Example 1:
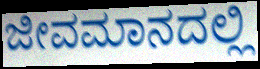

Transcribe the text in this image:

ಜೀವಮಾನದಲ್ಲಿ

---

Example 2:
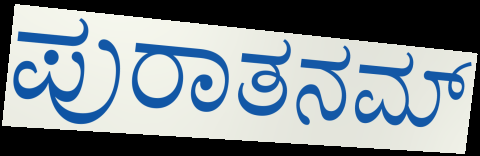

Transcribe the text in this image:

ಪುರಾತನಮ್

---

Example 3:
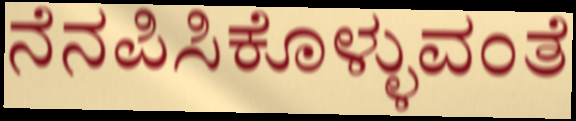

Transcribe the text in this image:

ನೆನಪಿಸಿಕೊಳ್ಳುವಂತೆ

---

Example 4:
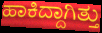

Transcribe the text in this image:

ಹಾಕಿದ್ದಾಗಿತ್ತು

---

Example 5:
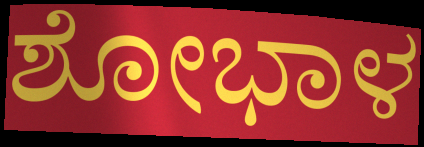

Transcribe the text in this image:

ಶೋಭಾಳ